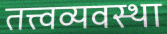
तत्त्वव्यवस्था